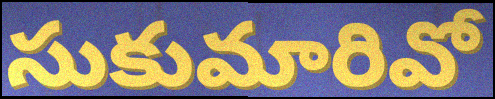
సుకుమారివో